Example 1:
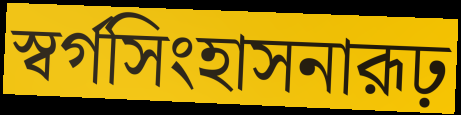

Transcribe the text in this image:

স্বর্গসিংহাসনারূঢ়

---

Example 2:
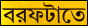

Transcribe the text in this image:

বরফটাতে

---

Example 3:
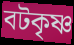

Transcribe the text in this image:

বটকৃষ্ণ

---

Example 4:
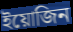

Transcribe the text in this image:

ইয়োজিন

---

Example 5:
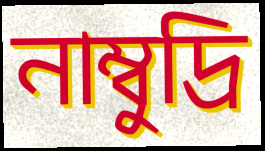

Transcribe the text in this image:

নাম্বুদ্রি